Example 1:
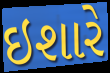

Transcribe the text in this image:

ઇશારે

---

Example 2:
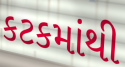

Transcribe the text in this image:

કટકમાંથી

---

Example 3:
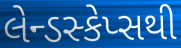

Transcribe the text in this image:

લેન્ડસ્કેપ્સથી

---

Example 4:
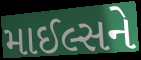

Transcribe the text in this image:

માઈલ્સને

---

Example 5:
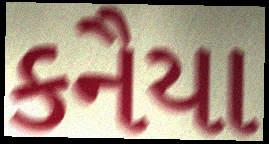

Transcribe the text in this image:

કનૈયા